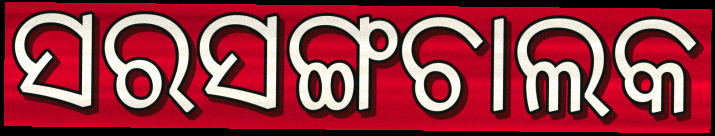
ସରସଙ୍ଗଚାଲକ